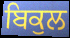
ਬਿਕੁਲ